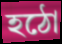
হঠো